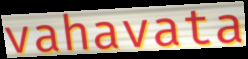
vahavata